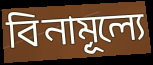
বিনামূল্যে